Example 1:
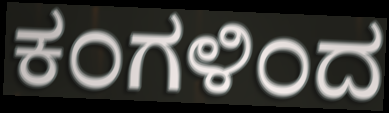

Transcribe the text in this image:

ಕಂಗಳಿಂದ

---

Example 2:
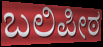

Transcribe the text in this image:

ಬಲಿಪೀಠ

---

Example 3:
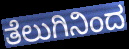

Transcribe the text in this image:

ತೆಲುಗಿನಿಂದ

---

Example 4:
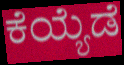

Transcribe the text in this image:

ಕೆಯ್ಯೆಡೆ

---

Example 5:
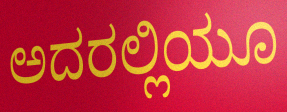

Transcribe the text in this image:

ಅದರಲ್ಲಿಯೂ